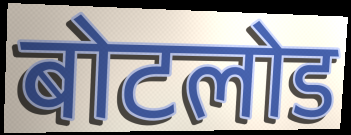
बोटलोड